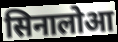
सिनालोआ